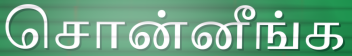
சொன்னீங்க